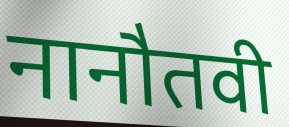
नानौतवी